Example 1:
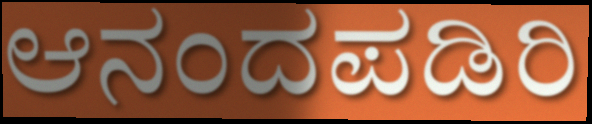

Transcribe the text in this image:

ಆನಂದಪಡಿರಿ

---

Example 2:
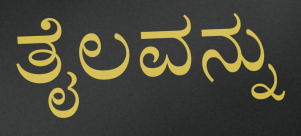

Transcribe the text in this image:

ತೈಲವನ್ನು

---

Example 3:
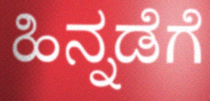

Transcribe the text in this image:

ಹಿನ್ನಡೆಗೆ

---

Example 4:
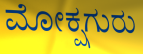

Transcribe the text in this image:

ಮೋಕ್ಷಗುರು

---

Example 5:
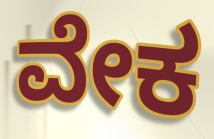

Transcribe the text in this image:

ವೇಕ